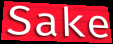
Sake